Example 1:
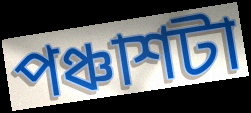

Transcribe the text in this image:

পঞ্চাশটা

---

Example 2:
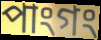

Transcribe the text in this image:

পাংগং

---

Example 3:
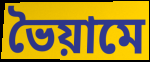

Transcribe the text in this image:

ভৈয়ামে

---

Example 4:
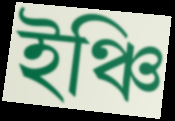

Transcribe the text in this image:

ইঞ্চি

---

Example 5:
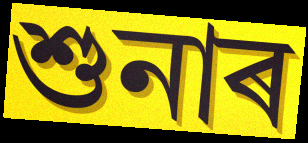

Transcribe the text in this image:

শুনাৰ